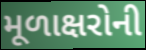
મૂળાક્ષરોની